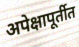
अपेक्षापूर्तीत